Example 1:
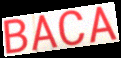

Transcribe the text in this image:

BACA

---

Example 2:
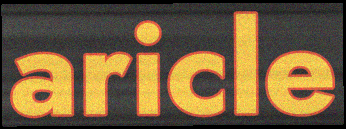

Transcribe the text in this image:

aricle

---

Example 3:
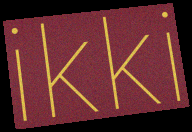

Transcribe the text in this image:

ikki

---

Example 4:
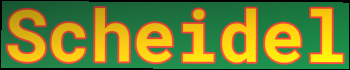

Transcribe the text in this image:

Scheidel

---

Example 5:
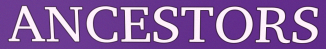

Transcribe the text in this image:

ANCESTORS